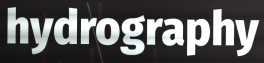
hydrography